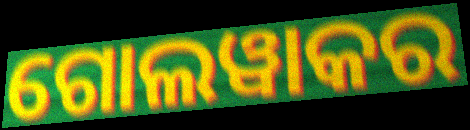
ଗୋଲୱାକର